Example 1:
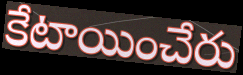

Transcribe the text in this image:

కేటాయించేరు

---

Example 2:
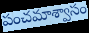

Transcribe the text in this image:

పంచమాశ్వాసం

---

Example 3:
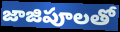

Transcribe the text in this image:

జాజిపూలతో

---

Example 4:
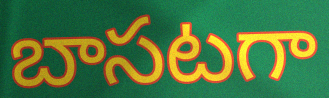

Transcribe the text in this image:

బాసటగా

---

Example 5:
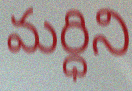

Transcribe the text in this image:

మర్ధిని